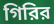
গিরির